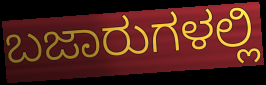
ಬಜಾರುಗಳಲ್ಲಿ